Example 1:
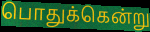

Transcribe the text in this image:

பொதுக்கென்று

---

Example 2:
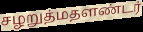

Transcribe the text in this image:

சழறுத்மதளண்டர்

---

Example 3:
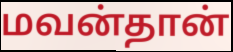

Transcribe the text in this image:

மவன்தான்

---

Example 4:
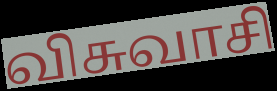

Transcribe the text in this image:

விசுவாசி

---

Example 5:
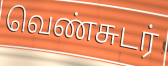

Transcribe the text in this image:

வெண்சுடர்